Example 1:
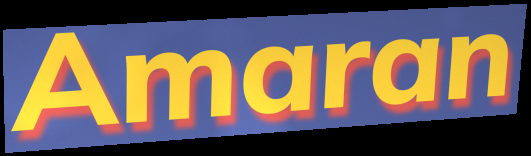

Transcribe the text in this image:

Amaran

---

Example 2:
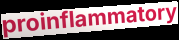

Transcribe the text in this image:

proinflammatory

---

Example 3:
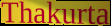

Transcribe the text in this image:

Thakurta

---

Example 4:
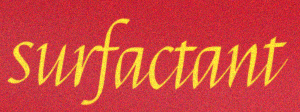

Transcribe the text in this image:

surfactant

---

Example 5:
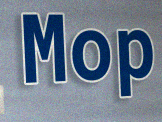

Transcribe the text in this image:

Mop